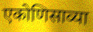
एकोणिसाव्या